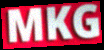
MKG